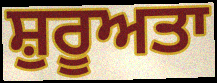
ਸ਼ੁਰੂਅਤਾ